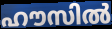
ഹൗസിൽ